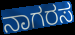
ನಾಗರಸ